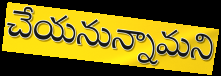
చేయనున్నామని